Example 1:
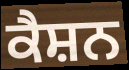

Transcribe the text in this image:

ਕੈਸ਼ਨ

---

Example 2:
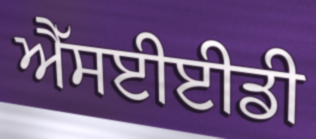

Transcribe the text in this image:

ਐੱਸਈਈਡੀ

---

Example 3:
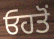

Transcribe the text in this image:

ਓਹਤੋਂ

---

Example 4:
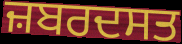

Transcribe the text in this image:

ਜ਼ਬਰਦਸਤ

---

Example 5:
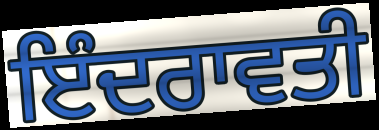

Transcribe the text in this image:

ਇੰਦਰਾਵਤੀ